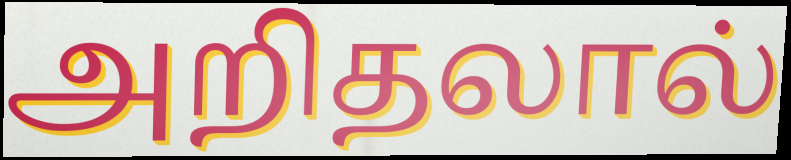
அறிதலால்